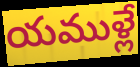
యముళ్లే